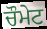
ਚੌਮੇਟ